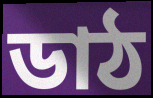
ডাঠ